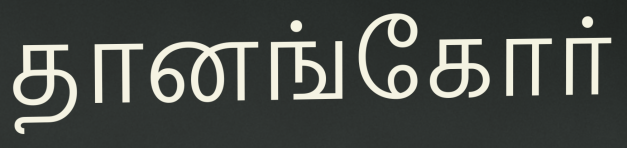
தானங்கோர்